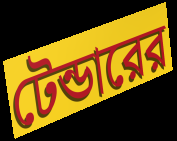
টেন্ডারের